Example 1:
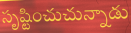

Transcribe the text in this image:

సృష్టించుచున్నాడు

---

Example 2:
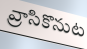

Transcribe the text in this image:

వ్రాసికొనుట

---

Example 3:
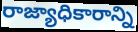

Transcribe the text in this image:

రాజ్యాధికారాన్ని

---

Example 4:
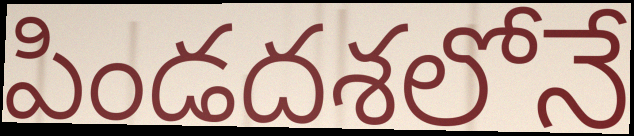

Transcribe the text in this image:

పిండదశలోనే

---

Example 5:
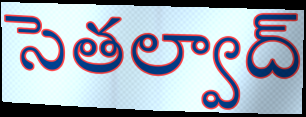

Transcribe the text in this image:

సెతల్వాద్